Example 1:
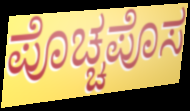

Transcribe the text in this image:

ಪೊಚ್ಚಪೊಸ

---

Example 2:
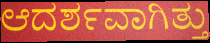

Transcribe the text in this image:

ಆದರ್ಶವಾಗಿತ್ತು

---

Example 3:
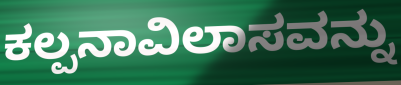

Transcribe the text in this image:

ಕಲ್ಪನಾವಿಲಾಸವನ್ನು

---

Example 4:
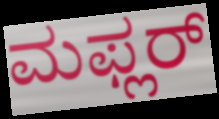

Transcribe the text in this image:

ಮಫ್ಲರ್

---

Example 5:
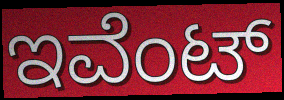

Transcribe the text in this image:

ಇವೆಂಟ್